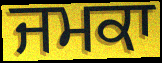
ਜਮਕਾ